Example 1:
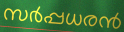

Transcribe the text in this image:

സർപ്പധരൻ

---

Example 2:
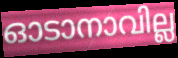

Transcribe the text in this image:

ഓടാനാവില്ല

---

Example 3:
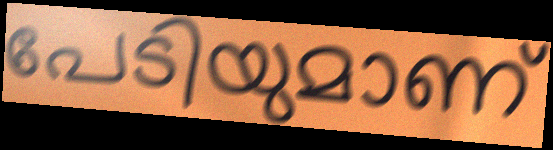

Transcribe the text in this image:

പേടിയുമാണ്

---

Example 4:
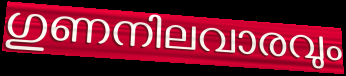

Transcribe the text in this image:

ഗുണനിലവാരവും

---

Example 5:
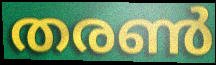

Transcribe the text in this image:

തരൺ